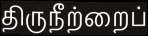
திருநீற்றைப்